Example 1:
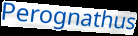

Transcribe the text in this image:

Perognathus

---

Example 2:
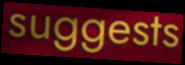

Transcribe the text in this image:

suggests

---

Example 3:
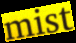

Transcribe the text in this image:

mist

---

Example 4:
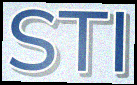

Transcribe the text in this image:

STI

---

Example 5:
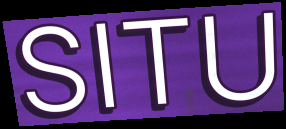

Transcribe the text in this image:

SITU